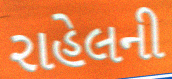
રાહેલની